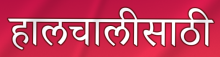
हालचालीसाठी